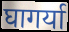
घागर्या